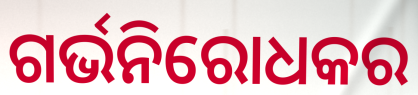
ଗର୍ଭନିରୋଧକର